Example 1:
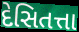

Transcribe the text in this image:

દેસિતત્તા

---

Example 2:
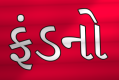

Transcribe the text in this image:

ફંડનો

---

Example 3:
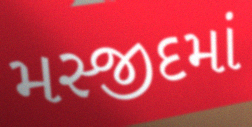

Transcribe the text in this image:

મસ્જીદમાં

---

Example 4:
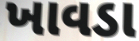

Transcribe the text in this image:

ખાવડા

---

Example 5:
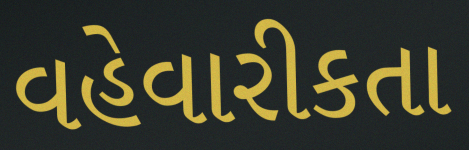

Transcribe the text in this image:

વહેવારીકતા